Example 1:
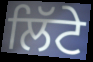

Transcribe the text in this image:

ਲਿੱਟੇ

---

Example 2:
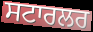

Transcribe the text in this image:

ਸਟਾਰਲਰ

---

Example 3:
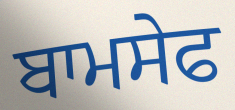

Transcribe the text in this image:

ਬਾਮਸੇਫ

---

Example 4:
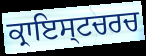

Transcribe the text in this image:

ਕ੍ਰਾਇਸ੍ਟਚਰਚ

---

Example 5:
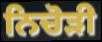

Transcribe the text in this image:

ਨਿਚੋੜੀ